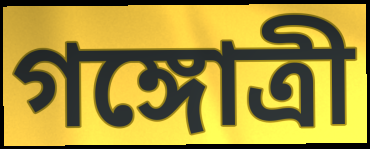
গঙ্গোত্রী